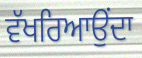
ਵੱਖਰਿਆਉਂਦਾ